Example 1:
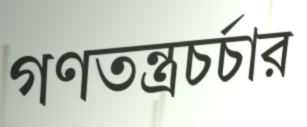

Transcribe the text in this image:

গণতন্ত্রচর্চার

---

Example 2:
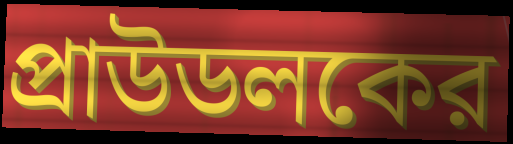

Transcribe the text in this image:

প্রাউডলকের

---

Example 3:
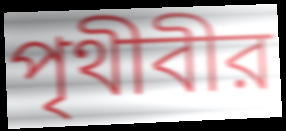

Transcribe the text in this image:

পৃথীবীর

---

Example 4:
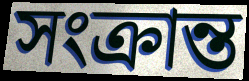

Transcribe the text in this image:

সংক্রান্ত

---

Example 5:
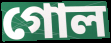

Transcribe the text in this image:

গোল